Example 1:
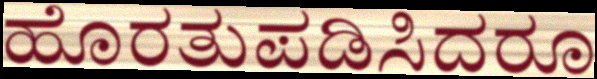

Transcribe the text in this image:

ಹೊರತುಪಡಿಸಿದರೂ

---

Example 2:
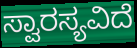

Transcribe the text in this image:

ಸ್ವಾರಸ್ಯವಿದೆ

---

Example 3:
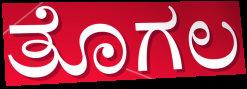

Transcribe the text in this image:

ತೊಗಲ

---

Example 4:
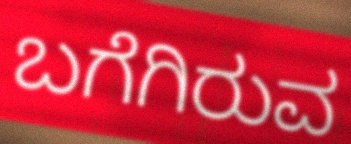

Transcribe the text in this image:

ಬಗೆಗಿರುವ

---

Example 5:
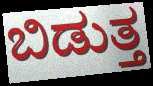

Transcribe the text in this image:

ಬಿಡುತ್ತ